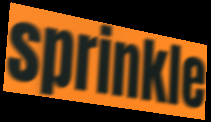
sprinkle